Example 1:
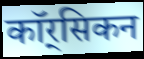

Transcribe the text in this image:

कॉर्सिकन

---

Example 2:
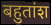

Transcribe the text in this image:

बहुतांश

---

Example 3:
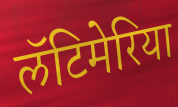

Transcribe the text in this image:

लॅटिमेरिया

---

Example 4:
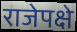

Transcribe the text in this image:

राजेपक्षे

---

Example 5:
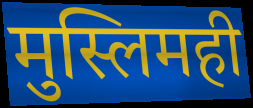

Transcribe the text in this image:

मुस्लिमही